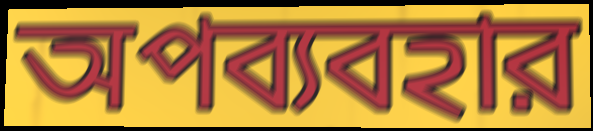
অপব্যবহার